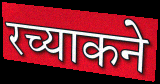
रच्याकने